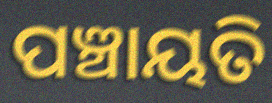
ପଞ୍ଚାୟତି